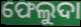
ଫେଲୁଦା